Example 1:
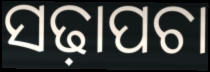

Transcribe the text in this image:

ସଢ଼ାପଚା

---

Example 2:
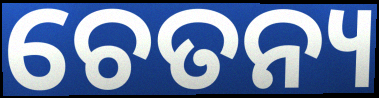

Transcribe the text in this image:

ଚେତନ୍ୟ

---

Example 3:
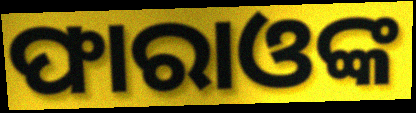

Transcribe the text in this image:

ଫାରାଓଙ୍କ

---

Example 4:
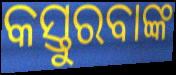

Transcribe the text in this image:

କସ୍ତୁରବାଙ୍କ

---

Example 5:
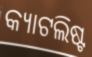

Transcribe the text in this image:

କ୍ୟାଟଲିଷ୍ଟ